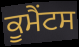
ਕੂਮੈਂਟਸ